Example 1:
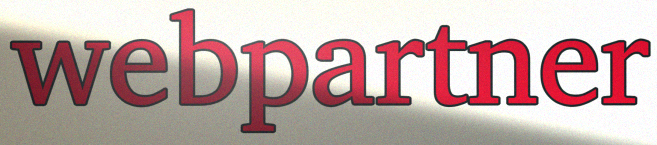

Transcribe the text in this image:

webpartner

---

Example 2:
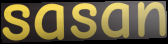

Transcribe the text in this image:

sasan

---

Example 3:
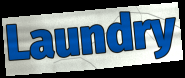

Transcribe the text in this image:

Laundry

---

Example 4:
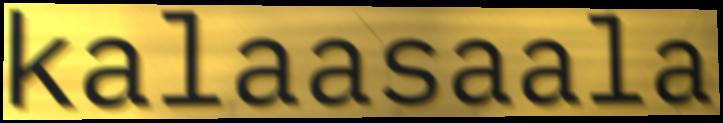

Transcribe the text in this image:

kalaasaala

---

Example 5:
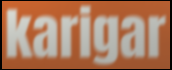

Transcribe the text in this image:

karigar